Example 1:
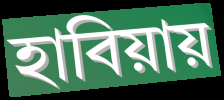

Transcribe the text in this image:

হাবিয়ায়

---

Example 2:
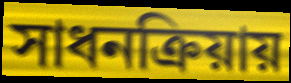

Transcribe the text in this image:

সাধনক্রিয়ায়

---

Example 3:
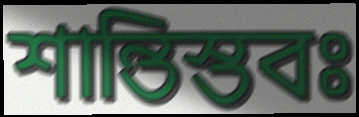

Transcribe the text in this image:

শান্তিস্তবঃ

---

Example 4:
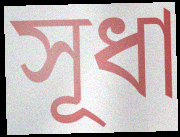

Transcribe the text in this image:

সূধা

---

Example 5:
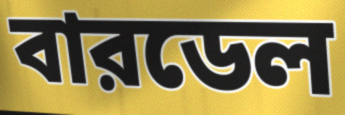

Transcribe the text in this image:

বারডেল